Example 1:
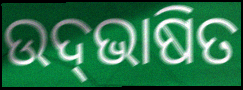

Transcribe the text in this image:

ଉଦ୍‍ଭାଷିତ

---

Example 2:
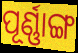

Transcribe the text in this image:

ପୂର୍ଣ୍ଣାଙ୍ଗ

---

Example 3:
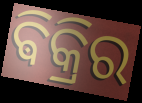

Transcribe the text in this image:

ଵିକ୍ରିର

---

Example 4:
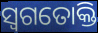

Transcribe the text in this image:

ସ୍ୱଗତୋକ୍ତି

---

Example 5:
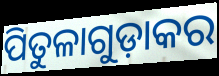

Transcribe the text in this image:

ପିତୁଳାଗୁଡ଼ାକର